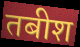
तबीश